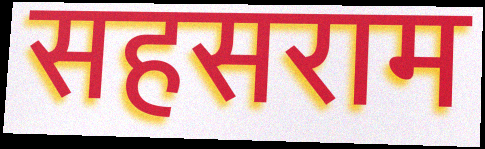
सहसराम